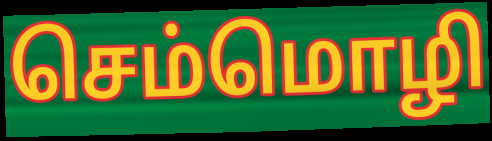
செம்மொழி